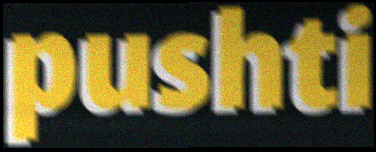
pushti